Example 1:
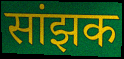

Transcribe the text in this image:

सांझक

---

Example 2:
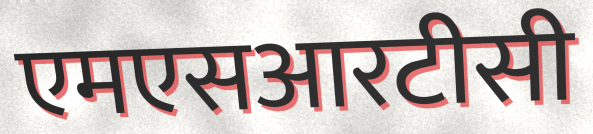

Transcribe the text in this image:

एमएसआरटीसी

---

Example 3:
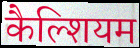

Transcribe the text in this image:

कैल्शियम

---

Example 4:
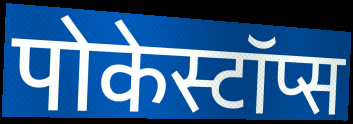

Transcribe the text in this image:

पोकेस्टॉप्स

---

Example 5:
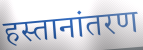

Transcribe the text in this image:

हस्तानांतरण